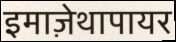
इमाज़ेथापायर